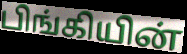
பிங்கியின்